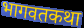
भागवतकथा